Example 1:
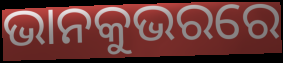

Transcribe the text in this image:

ଭାନକୁଭରରେ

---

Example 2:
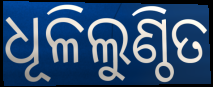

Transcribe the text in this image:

ଧୂଳିଲୁଣ୍ଠିତ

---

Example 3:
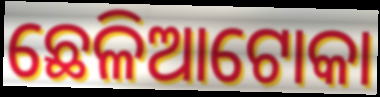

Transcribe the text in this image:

ଛେଳିଆଟୋକା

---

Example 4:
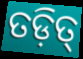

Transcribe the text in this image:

ତଡ଼ିତ୍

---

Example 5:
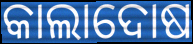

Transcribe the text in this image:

କାଲାଦୋଷ